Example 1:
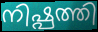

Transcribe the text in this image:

നിഷ്പത്തി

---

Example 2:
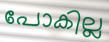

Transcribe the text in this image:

പോകില്ല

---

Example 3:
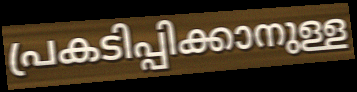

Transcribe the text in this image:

പ്രകടിപ്പിക്കാനുള്ള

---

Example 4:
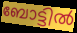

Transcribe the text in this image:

ബോട്ടിൽ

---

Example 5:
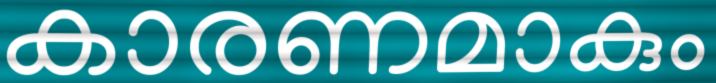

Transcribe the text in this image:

കാരണമാകും